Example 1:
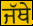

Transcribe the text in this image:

ਜੱਥੇ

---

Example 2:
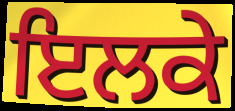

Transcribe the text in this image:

ਇਲਕੇ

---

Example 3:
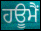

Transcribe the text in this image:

ਹਊਮੈਂ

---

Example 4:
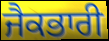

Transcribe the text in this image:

ਜੈਕਭਾਰੀ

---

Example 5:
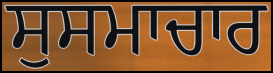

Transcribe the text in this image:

ਸੁਸਮਾਚਾਰ